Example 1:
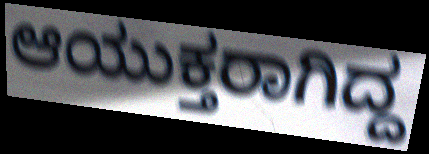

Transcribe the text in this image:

ಆಯುಕ್ತರಾಗಿದ್ದ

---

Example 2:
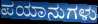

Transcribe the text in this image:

ಪಯಾನುಗಳು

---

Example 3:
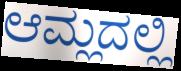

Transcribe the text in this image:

ಆಮ್ಲದಲ್ಲಿ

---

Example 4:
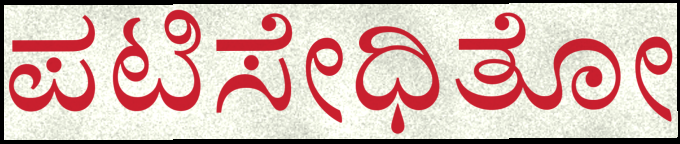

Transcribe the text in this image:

ಪಟಿಸೇಧಿತೋ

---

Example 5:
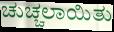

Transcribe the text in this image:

ಚುಚ್ಚಲಾಯಿತು